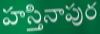
హస్తినాపుర